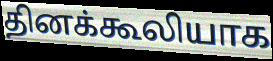
தினக்கூலியாக